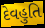
દેવહુતિ